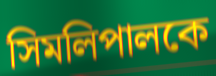
সিমলিপালকে